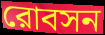
রোবসন